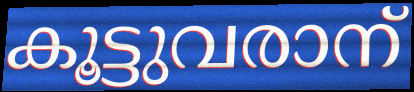
കൂട്ടുവരാന്